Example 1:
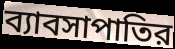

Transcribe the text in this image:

ব্যাবসাপাতির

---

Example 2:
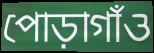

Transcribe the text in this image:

পোড়াগাঁও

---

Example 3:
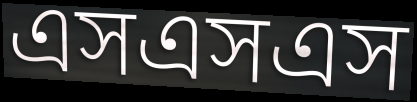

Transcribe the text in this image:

এসএসএস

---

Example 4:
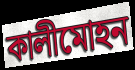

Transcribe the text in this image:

কালীমোহন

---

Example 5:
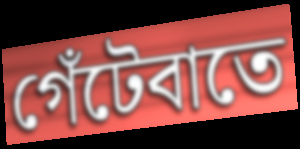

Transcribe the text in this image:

গেঁটেবাতে